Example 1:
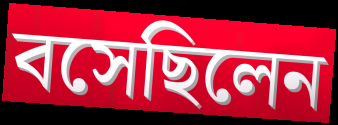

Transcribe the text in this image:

বসেছিলেন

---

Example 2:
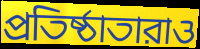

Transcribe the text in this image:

প্রতিষ্ঠাতারাও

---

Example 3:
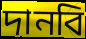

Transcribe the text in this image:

দানবি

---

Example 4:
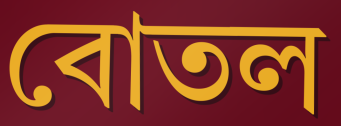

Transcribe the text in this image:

বোতল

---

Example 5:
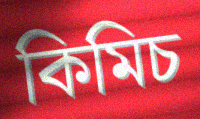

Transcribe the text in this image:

কিমিচ